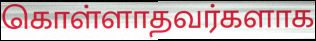
கொள்ளாதவர்களாக